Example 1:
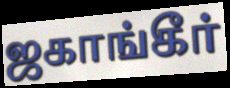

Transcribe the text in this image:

ஜகாங்கீர்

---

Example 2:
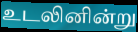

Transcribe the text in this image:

உடலினின்று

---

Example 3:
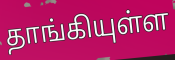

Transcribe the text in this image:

தாங்கியுள்ள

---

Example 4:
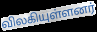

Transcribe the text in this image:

விலகியுள்ளனர்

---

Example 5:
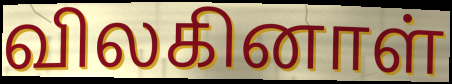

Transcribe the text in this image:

விலகினாள்